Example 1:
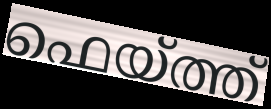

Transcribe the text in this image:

ഫെയ്ത്ത്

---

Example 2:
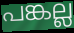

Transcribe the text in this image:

പങ്കല്ല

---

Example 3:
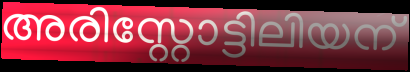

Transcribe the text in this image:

അരിസ്റ്റോട്ടിലിയന്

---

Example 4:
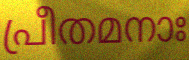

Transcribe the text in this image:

പ്രീതമനാഃ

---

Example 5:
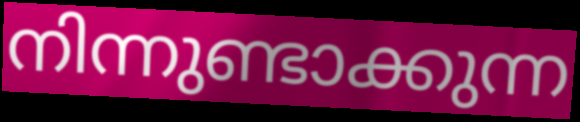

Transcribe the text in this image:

നിന്നുണ്ടാക്കുന്ന